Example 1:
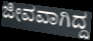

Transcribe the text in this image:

ಜೀವವಾಗಿದ್ದ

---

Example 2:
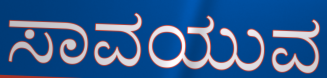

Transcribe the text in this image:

ಸಾವಯುವ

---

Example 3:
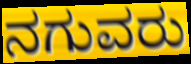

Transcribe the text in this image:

ನಗುವರು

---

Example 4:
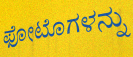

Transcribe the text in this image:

ಫೋಟೊಗಳನ್ನು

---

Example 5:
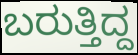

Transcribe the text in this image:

ಬರುತ್ತಿದ್ದ